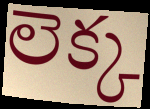
లెక్క